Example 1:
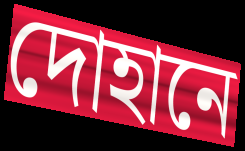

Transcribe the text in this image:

দোহানে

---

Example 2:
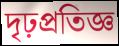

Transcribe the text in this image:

দৃঢ়প্রতিজ্ঞ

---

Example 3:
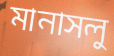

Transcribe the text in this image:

মানাসলু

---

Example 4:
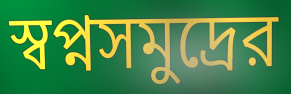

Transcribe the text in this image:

স্বপ্নসমুদ্রের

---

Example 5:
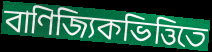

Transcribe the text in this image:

বাণিজ্যিকভিত্তিতে